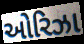
ઓરિઝા